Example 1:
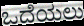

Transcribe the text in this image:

ಒದೆಯಲು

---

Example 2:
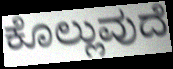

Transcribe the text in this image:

ಕೊಲ್ಲುವುದೆ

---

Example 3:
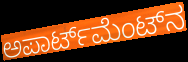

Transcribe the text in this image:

ಅಪಾರ್ಟ್‌ಮೆಂಟ್‌ನ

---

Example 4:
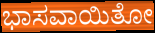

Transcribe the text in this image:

ಭಾಸವಾಯಿತೋ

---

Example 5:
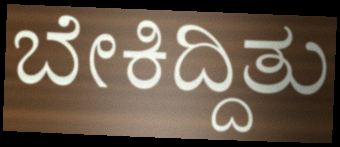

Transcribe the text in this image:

ಬೇಕಿದ್ದಿತು